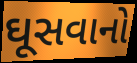
ઘૂસવાનો